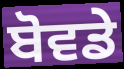
ਬੋਵਡੇ